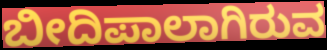
ಬೀದಿಪಾಲಾಗಿರುವ